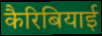
कैरिबियाई